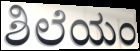
ಶಿಲೆಯಂ